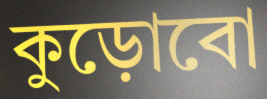
কুড়োবো